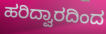
ಹರಿದ್ವಾರದಿಂದ